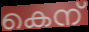
കെന്